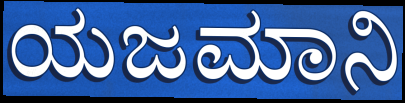
ಯಜಮಾನಿ